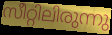
സീറ്റിലിരുന്നു